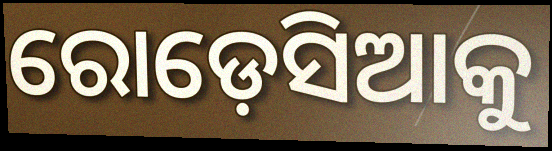
ରୋଡ଼େସିଆକୁ